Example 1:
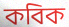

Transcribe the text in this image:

কবিক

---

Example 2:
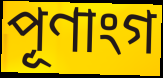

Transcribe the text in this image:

পূণাংগ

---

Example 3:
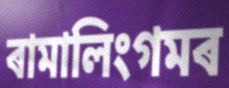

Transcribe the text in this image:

ৰামালিংগমৰ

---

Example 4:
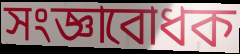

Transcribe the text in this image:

সংজ্ঞাবোধক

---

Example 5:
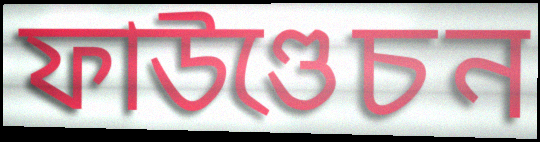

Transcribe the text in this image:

ফাউণ্ডেচন